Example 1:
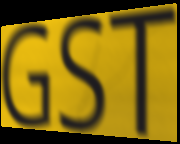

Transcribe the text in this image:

GST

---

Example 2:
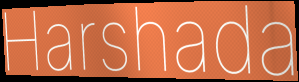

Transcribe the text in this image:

Harshada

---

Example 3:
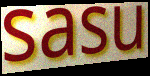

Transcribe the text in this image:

sasu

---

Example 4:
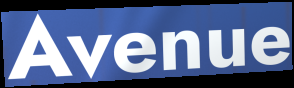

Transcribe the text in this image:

Avenue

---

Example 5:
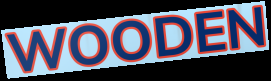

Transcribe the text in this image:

WOODEN